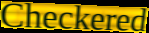
Checkered